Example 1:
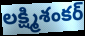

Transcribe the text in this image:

లక్ష్మిశంకర్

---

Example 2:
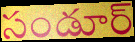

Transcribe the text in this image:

సండూర్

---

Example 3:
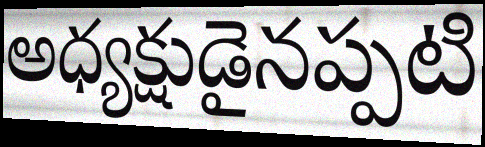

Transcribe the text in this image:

అధ్యక్షుడైనప్పటి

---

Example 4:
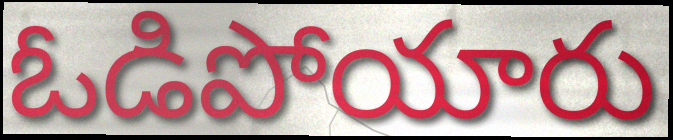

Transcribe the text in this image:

ఓడిపోయారు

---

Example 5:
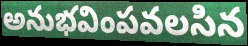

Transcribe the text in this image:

అనుభవింపవలసిన